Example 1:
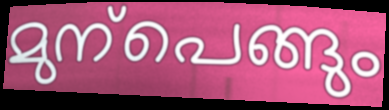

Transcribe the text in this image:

മുന്പെങ്ങും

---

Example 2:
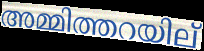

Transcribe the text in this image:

അമ്മിത്തറയില്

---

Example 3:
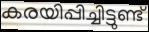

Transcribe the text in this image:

കരയിപ്പിച്ചിട്ടുണ്ട്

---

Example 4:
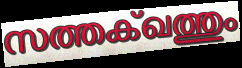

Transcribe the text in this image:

സത്തക്ഖത്തും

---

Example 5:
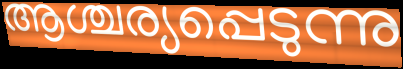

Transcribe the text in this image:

ആശ്ചര്യപ്പെടുന്നു